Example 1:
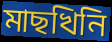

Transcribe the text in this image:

মাছখিনি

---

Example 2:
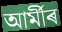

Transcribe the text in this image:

আৰ্মীৰ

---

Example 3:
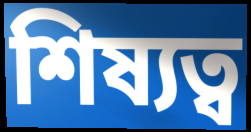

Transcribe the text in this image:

শিষ্যত্ব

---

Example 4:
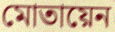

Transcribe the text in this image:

মোতায়েন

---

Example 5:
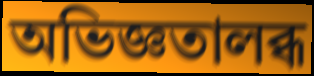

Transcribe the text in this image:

অভিজ্ঞতালব্ধ